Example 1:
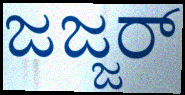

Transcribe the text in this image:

ಜಜ್ಜರ್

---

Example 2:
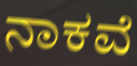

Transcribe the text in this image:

ನಾಕವೆ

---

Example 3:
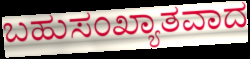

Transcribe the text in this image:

ಬಹುಸಂಖ್ಯಾತವಾದ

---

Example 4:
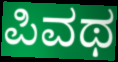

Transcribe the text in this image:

ಪಿವಥ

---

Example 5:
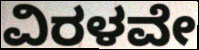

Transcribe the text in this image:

ವಿರಳವೇ